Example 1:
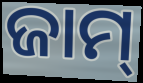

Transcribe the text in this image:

ଜାମ୍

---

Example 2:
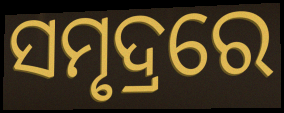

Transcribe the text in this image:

ସମୃଦ୍ରରେ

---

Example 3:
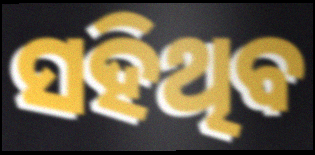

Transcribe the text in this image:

ସହିଥିବ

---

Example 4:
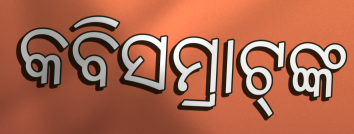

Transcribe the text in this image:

କବିସମ୍ରାଟ୍‌ଙ୍କ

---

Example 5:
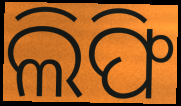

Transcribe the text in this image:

ଲିଫି